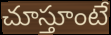
చూస్తూంటే